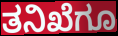
ತನಿಖೆಗೂ